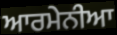
ਆਰਮੇਨੀਆ